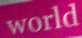
world